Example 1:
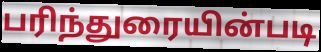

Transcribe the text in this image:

பரிந்துரையின்படி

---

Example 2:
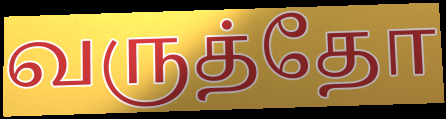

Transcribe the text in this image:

வருத்தோ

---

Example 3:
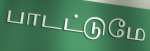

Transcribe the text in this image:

பாடட்டுமே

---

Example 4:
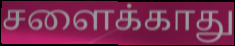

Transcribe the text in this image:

சளைக்காது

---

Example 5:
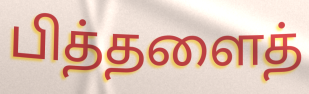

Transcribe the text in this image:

பித்தளைத்